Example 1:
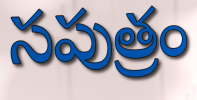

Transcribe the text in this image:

సపుత్రం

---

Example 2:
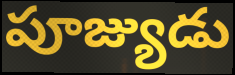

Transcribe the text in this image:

పూజ్యుడు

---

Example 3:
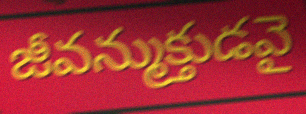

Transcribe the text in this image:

జీవన్ముక్తుడవై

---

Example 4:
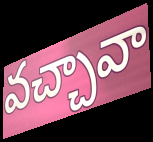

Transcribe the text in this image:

వచ్చావా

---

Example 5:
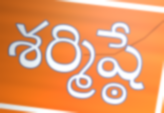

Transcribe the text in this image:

శర్మిష్ఠే